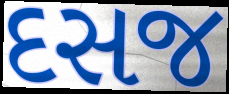
દસજ